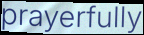
prayerfully